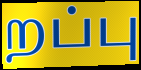
றப்பு